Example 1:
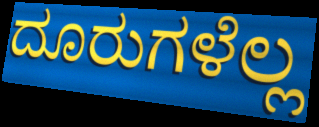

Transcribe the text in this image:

ದೂರುಗಳೆಲ್ಲ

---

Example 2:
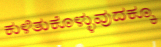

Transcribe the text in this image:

ಕುಳಿತುಕೊಳ್ಳುವುದಕ್ಕೂ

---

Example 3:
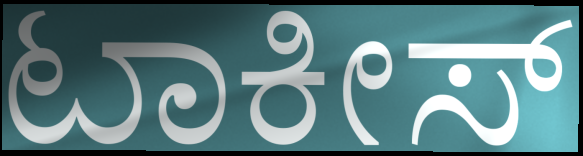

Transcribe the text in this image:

ಟಾಕೀಸ್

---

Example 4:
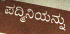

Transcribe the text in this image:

ಪದ್ಮಿನಿಯನ್ನು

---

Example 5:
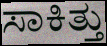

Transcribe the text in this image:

ಸಾಕಿತ್ತು